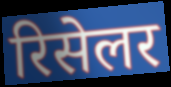
रिसेलर